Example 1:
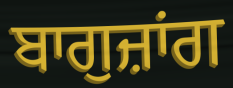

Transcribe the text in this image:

ਬਾਗੁਜ਼ਾਂਗ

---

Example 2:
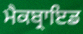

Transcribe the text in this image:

ਮੈਕਬ੍ਰਾਇਡ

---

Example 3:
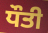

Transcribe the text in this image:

ਧੌਤੀ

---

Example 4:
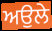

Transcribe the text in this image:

ਅਉਲੇ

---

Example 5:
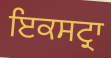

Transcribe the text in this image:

ਇਕਸਟ੍ਰਾ